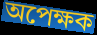
অপেক্ষক